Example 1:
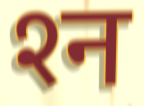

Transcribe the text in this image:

श्न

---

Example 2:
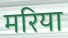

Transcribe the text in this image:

मरिया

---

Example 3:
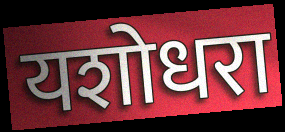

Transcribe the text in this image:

यशोधरा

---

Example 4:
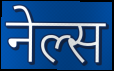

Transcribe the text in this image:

नेल्स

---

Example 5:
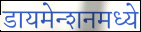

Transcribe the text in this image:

डायमेन्शनमध्ये